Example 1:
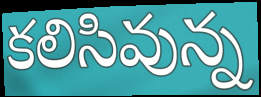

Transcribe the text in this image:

కలిసివున్న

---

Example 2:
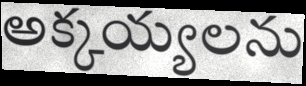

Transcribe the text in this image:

అక్కయ్యలను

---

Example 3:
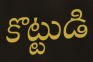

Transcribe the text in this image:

కొట్టుడి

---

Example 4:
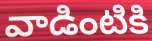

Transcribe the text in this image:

వాడింటికి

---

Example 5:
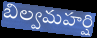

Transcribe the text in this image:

బిల్వమహర్షి